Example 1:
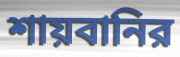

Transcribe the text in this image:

শায়বানির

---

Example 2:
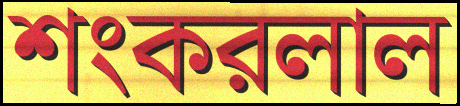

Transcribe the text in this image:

শংকরলাল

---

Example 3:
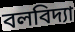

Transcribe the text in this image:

বলবিদ্যা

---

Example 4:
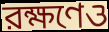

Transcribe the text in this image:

রক্ষণেও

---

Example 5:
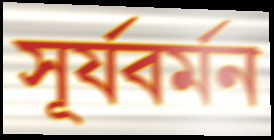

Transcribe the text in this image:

সূর্যবর্মন